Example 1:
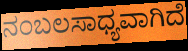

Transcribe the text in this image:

ನಂಬಲಸಾಧ್ಯವಾಗಿದೆ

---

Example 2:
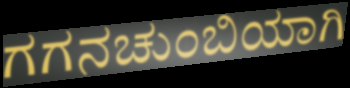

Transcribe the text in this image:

ಗಗನಚುಂಬಿಯಾಗಿ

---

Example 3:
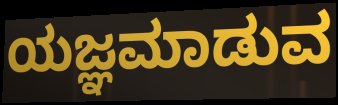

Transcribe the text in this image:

ಯಜ್ಞಮಾಡುವ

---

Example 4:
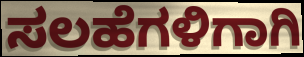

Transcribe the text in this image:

ಸಲಹೆಗಳಿಗಾಗಿ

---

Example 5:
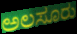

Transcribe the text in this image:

ಅಲಸೂರು